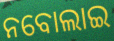
ନବୋଲାଇ